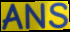
ANS